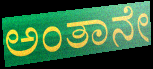
ಅಂತಾನೇ